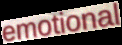
emotional